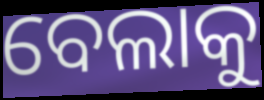
ବେଲାକୁ